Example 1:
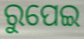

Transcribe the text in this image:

ରୁପେଇ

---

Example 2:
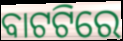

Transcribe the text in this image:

ବାଟଟିରେ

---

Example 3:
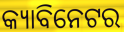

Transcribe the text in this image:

କ୍ୟାବିନେଟର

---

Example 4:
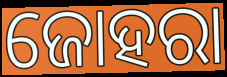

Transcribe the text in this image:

ଜୋହରା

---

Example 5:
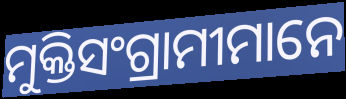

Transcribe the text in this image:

ମୁକ୍ତିସଂଗ୍ରାମୀମାନେ